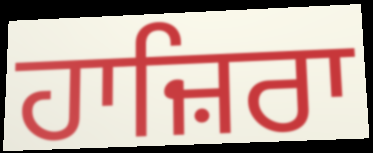
ਹਾਜ਼ਿਰਾ